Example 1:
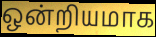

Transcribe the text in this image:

ஒன்றியமாக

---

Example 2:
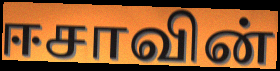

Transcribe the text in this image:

ஈசாவின்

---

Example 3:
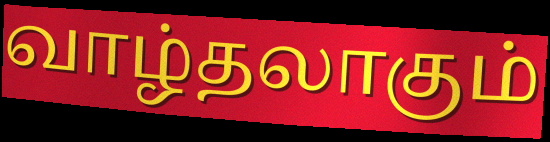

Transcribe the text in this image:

வாழ்தலாகும்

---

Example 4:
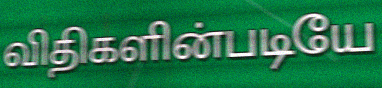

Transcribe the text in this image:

விதிகளின்படியே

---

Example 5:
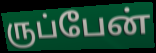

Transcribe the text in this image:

ருப்பேன்